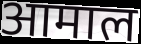
आमाल